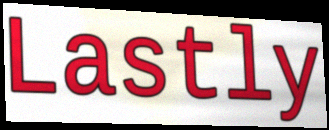
Lastly